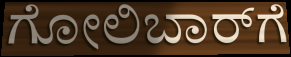
ಗೋಲಿಬಾರ್‌ಗೆ